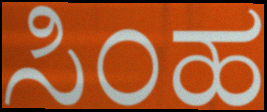
ಸಿಂಹ